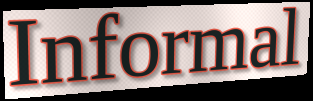
Informal